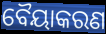
ବୈୟାକରଣ